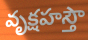
వృక్షహస్తౌ